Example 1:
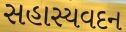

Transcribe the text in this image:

સહાસ્યવદન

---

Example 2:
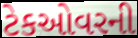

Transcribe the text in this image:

ટેકઓવરની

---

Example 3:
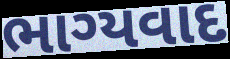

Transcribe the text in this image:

ભાગ્યવાદ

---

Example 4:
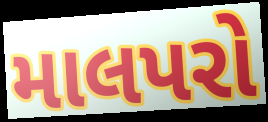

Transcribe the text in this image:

માલપરો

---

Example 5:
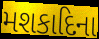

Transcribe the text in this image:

મશકાદિના